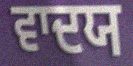
ਵਾਦਯ